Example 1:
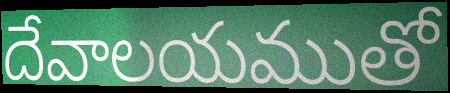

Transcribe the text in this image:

దేవాలయముతో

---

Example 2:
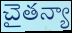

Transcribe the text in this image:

చైతన్యా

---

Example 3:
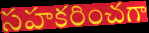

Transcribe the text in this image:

సహకరించగా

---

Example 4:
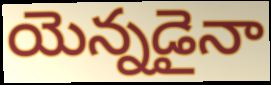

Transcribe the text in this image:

యెన్నడైనా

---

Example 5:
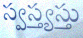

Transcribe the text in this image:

స్వస్త్యస్తు